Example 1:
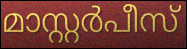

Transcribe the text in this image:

മാസ്റ്റർപീസ്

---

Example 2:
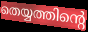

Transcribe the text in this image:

തെയ്യത്തിന്റെ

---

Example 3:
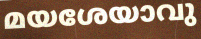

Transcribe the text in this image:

മയശേയാവു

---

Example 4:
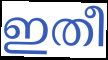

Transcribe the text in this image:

ഇതീ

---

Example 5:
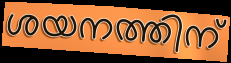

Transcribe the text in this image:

ശയനത്തിന്